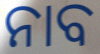
ନାବ